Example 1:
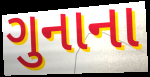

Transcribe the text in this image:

ગુનાના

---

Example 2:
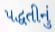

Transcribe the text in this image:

પદ્ધતીનું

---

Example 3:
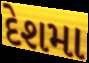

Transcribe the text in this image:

દેશમા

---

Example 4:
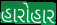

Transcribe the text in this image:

હારોહાર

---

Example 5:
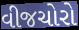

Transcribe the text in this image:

વીજચોરો